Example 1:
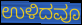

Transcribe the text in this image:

ಉಳಿದವೂ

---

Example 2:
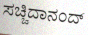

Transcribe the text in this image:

ಸಚ್ಚಿದಾನಂದ್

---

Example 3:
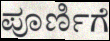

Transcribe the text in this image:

ಪೂರ್ಣಿಗೆ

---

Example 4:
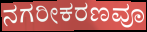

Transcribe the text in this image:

ನಗರೀಕರಣವೂ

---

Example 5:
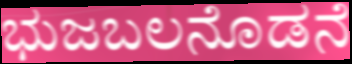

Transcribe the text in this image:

ಭುಜಬಲನೊಡನೆ